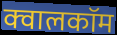
क्‍वालकॉम